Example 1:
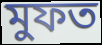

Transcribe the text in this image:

মুফত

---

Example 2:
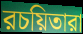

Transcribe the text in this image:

রচয়িতারা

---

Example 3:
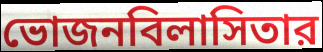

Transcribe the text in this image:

ভোজনবিলাসিতার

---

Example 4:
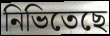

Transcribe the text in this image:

নিভিতেছে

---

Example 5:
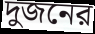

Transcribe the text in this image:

দুজনের